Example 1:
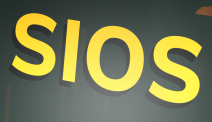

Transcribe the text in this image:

SIOS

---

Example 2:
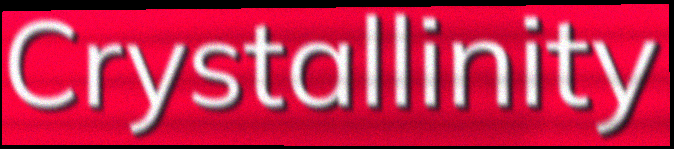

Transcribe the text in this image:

Crystallinity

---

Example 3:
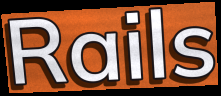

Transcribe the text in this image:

Rails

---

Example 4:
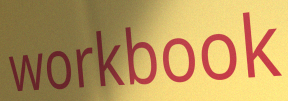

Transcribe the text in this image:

workbook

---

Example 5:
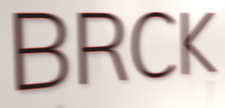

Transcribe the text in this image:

BRCK